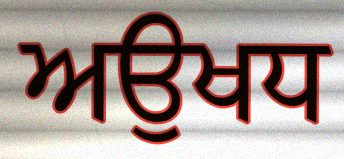
ਅਉਖਧ